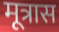
मूत्रास